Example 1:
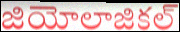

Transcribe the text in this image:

జియోలాజికల్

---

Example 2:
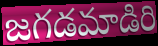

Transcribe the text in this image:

జగడమాడిరి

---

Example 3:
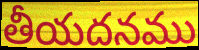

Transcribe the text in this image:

తీయదనము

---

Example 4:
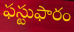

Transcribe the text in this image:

ఫస్టుఫారం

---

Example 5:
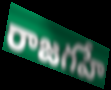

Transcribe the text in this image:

రాజగహే